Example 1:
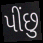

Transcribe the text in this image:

પીંછુ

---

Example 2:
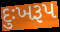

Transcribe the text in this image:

દુઃખરૂપ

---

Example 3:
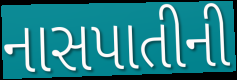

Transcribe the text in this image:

નાસપાતીની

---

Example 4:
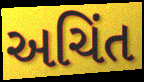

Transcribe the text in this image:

અચિંત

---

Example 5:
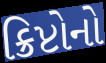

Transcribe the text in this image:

ક્રિપ્ટોનો